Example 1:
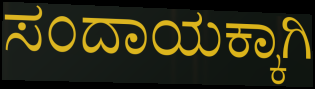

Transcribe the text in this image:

ಸಂದಾಯಕ್ಕಾಗಿ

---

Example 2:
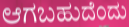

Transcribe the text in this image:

ಆಗಬಹುದೆಂದು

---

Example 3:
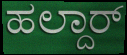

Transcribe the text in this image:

ಹಲ್ದಾರ್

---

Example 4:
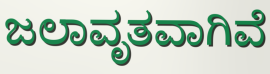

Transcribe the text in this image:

ಜಲಾವೃತವಾಗಿವೆ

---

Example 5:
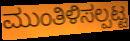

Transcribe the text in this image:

ಮುಂತಿಳಿಸಲ್ಪಟ್ಟ